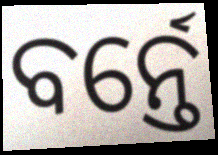
ବର୍ନ୍ତେ